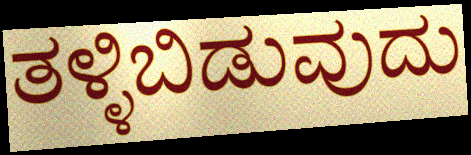
ತಳ್ಳಿಬಿಡುವುದು